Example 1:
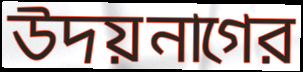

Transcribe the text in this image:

উদয়নাগের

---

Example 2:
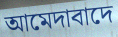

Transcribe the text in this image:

আমেদাবাদে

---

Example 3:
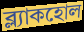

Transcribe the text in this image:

ব্ল্যাকহোল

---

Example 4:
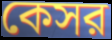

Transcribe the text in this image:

কেসর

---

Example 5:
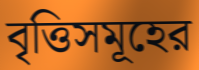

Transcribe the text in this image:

বৃত্তিসমূহের